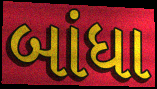
બાંધા